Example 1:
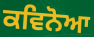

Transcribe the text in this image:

ਕਵਿਨੋਆ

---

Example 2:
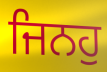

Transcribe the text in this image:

ਜਿਨਹੁ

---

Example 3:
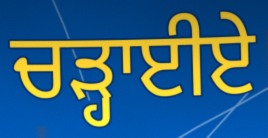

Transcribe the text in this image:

ਚੜ੍ਹਾਈਏ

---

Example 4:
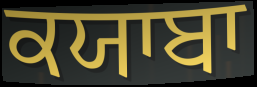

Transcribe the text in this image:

ਕਯਾਬਾ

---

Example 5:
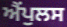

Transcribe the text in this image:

ਐਂਪੁਲਸ